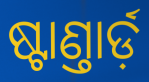
ଷ୍ଟାଣ୍ତାର୍ଡ଼